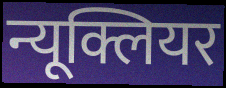
न्‍यूक्लियर